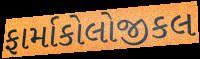
ફાર્માકોલોજીકલ